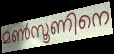
മൺസൂണിനെ